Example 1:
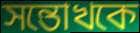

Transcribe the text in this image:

সন্তোখকে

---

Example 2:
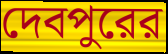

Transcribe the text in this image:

দেবপুরের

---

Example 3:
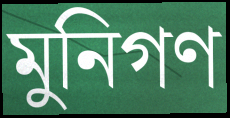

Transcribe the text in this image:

মুনিগণ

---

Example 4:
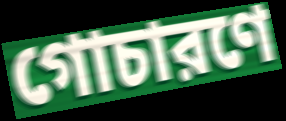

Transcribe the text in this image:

গোচারণে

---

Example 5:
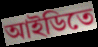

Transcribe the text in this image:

আইডিতে